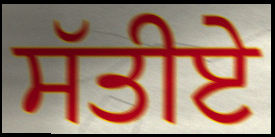
ਸੱਤੀਏ